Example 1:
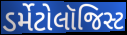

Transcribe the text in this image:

ડર્મેટોલૉજિસ્ટ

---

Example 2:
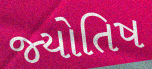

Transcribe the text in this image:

જ્‍યોતિષ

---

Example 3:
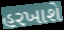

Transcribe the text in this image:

હરખાશે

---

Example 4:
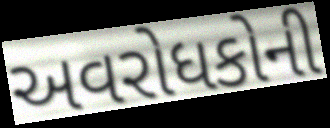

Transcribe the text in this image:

અવરોધકોની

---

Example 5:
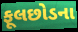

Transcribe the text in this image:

ફૂલછોડના